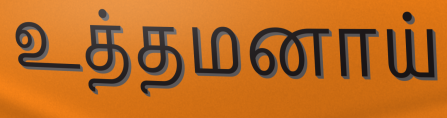
உத்தமனாய்